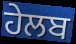
ਹੇਲਬ